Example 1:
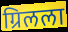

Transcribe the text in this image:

ग्रिलला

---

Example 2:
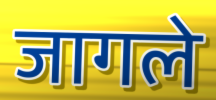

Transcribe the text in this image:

जागले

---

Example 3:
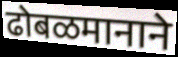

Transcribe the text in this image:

ढोबळमानाने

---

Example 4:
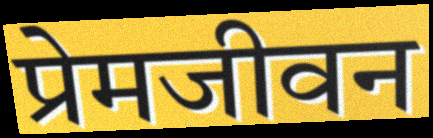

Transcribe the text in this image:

प्रेमजीवन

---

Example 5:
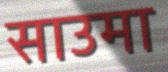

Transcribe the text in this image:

साउमा